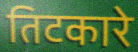
तिटकारे